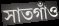
সাতগাঁও